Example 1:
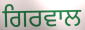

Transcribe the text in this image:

ਗਿਰਵਾਲ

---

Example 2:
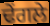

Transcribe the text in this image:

ਢੇਂਗਲੇ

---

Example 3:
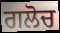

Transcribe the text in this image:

ਗਲੋਚ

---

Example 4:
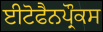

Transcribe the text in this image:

ਈਟੋਫੈਨਪ੍ਰੌਕਸ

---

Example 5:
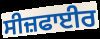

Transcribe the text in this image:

ਸੀਜ਼ਫਾਈਰ